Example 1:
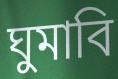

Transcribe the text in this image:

ঘুমাবি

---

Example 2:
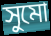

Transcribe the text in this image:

সুমো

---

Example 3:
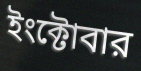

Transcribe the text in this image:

ইংক্টোবার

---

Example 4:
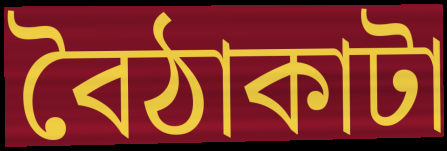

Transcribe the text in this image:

বৈঠাকাটা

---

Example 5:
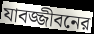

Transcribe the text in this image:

যাবজ্জীবনের